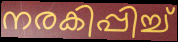
നരകിപ്പിച്ച്